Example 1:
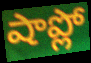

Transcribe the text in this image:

షాప్లో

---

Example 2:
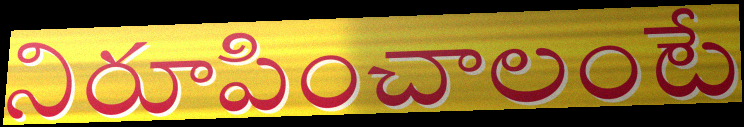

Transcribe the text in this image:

నిరూపించాలంటే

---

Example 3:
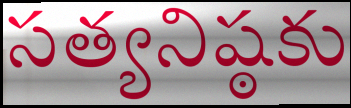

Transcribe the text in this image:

సత్యనిష్ఠకు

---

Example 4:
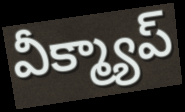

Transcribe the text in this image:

వీక్మ్యాప్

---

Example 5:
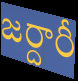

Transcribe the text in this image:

జర్దారీ